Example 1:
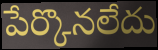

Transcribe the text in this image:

పేర్కొనలేదు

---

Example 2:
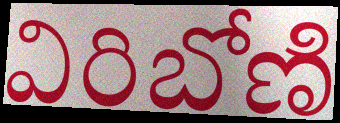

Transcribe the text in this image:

విరిబోణి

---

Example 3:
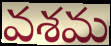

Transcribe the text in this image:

వశమ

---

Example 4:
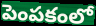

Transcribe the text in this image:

పెంపకంలో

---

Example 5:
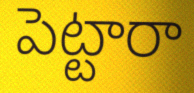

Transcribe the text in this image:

పెట్టారా